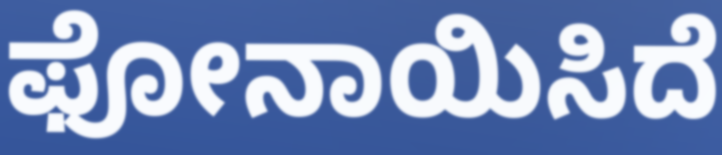
ಫೋನಾಯಿಸಿದೆ